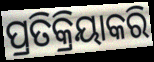
ପ୍ରତିକ୍ରିୟାକରି